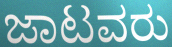
ಜಾಟವರು